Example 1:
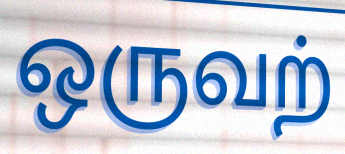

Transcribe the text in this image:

ஒருவற்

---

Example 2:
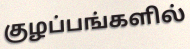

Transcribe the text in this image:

குழப்பங்களில்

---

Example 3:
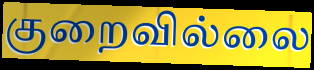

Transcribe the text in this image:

குறைவில்லை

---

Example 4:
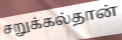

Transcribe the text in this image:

சறுக்கல்தான்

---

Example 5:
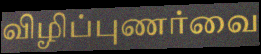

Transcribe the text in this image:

விழிப்புணர்வை